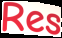
Res